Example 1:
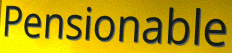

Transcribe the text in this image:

Pensionable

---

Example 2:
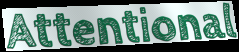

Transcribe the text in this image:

Attentional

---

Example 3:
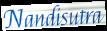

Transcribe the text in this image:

Nandisutra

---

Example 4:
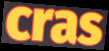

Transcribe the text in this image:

cras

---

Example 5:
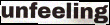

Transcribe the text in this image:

unfeeling